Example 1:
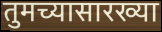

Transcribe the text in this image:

तुमच्यासारख्या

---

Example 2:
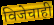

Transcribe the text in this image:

विजेचाही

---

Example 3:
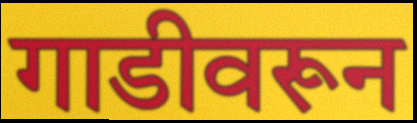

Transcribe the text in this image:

गाडीवरून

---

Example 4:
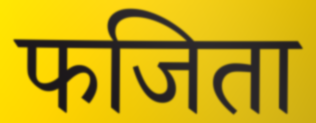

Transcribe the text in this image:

फजिता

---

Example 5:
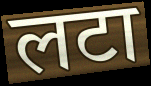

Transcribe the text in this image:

लटा